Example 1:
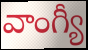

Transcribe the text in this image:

వాంగ్యీ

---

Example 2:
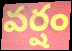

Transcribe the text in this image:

వర్షం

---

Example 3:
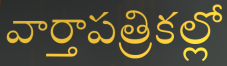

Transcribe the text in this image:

వార్తాపత్రికల్లో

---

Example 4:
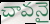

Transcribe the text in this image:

చావనై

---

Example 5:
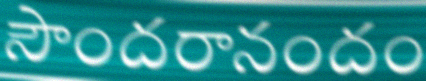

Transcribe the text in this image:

సౌందరానందం